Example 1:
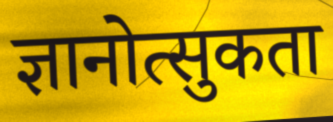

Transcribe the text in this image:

ज्ञानोत्सुकता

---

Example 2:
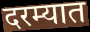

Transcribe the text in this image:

दरम्यात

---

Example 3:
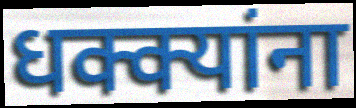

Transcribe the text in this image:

धक्क्यांना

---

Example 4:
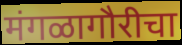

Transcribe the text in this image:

मंगळागौरीचा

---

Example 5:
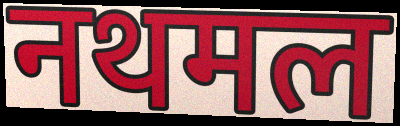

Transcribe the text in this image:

नथमल